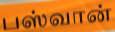
பஸ்வான்